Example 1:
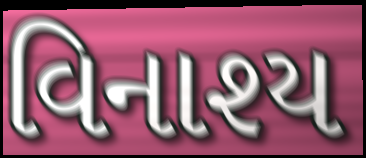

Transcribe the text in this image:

વિનાશ્ય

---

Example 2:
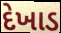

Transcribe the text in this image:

દેખાડ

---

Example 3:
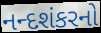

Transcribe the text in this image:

નન્દશંકરનો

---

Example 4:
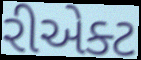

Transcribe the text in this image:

રીએક્ટ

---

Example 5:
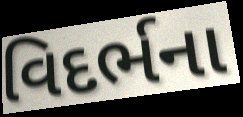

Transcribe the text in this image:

વિદર્ભના